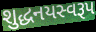
શુદ્ધનયસ્વરૂપ